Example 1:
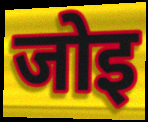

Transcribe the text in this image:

जोइ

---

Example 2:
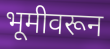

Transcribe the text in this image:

भूमीवरून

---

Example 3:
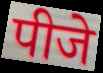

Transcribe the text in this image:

पीजे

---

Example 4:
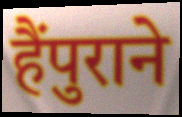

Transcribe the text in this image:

हैंपुराने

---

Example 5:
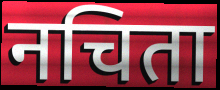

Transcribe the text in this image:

नचिता